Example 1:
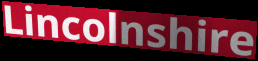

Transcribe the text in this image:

Lincolnshire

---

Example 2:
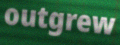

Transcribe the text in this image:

outgrew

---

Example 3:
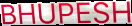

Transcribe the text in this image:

BHUPESH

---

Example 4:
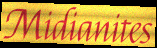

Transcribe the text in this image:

Midianites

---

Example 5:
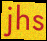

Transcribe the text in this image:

jhs